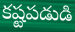
కష్టపడుడి